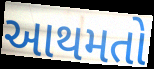
આથમતો